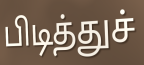
பிடித்துச்